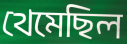
থেমেছিল